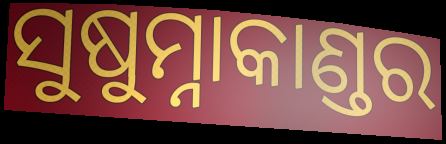
ସୁଷୁମ୍ନାକାଣ୍ଡର